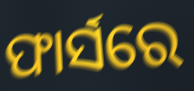
ଫାର୍ସରେ